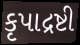
કૃપાદ્રષ્ટી